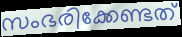
സംഭരിക്കേണ്ടത്